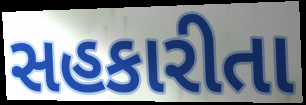
સહકારીતા